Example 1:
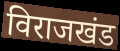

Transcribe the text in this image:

विराजखंड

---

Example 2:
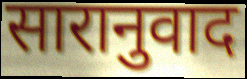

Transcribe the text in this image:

सारानुवाद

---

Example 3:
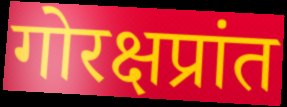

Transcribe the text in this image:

गोरक्षप्रांत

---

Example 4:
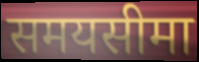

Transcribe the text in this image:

समयसीमा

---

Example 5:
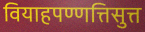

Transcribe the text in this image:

वियाहपण्णत्तिसुत्त